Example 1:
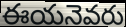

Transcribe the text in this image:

ఈయనెవరు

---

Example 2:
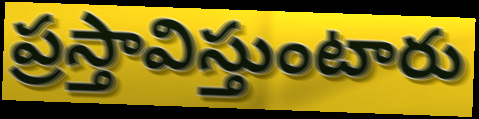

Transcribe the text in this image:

ప్రస్తావిస్తుంటారు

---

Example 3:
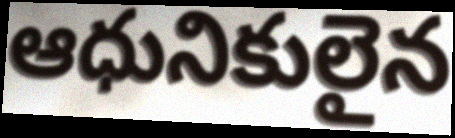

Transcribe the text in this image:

ఆధునికులైన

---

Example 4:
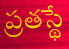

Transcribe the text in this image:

ప్రతస్థే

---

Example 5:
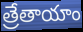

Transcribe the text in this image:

త్రేతాయాం